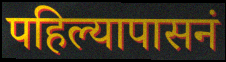
पहिल्यापासनं